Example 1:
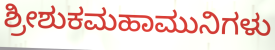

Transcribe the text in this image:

ಶ್ರೀಶುಕಮಹಾಮುನಿಗಳು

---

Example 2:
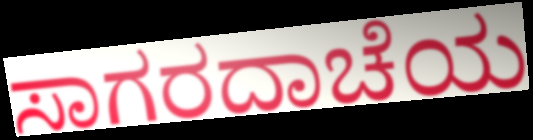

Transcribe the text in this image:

ಸಾಗರದಾಚೆಯ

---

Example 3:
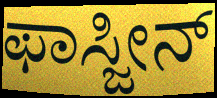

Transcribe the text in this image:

ಫಾಸ್ಜೀನ್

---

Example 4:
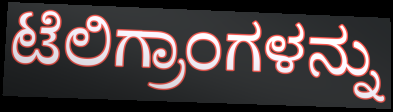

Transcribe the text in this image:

ಟೆಲಿಗ್ರಾಂಗಳನ್ನು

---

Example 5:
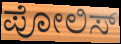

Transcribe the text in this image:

ಪೋಲಿಸ್